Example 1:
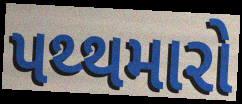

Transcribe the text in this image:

પથ્થમારો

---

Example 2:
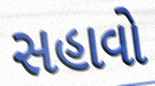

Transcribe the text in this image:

સહાવો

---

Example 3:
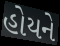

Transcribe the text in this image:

હોયને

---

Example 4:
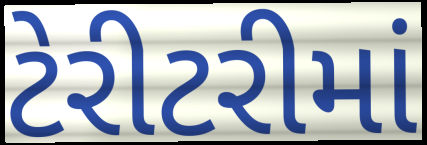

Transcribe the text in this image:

ટેરીટરીમાં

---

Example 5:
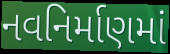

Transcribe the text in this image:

નવનિર્માણમાં